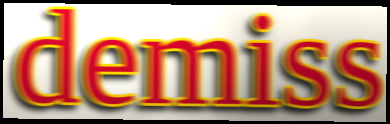
demiss